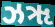
ઝૠ